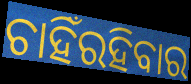
ଚାହିଁରହିବାର